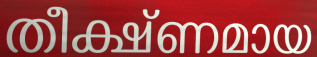
തീക്ഷ്‌ണമായ